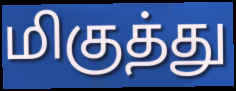
மிகுத்து